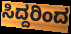
ಸಿದ್ದರಿಂದ